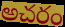
అచరం